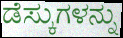
ಡೆಸ್ಕುಗಳನ್ನು